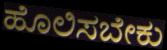
ಹೊಲಿಸಬೇಕು